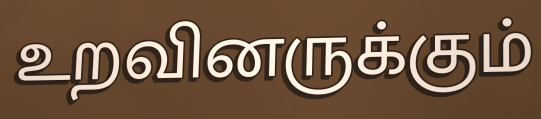
உறவினருக்கும்